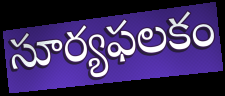
సూర్యఫలకం